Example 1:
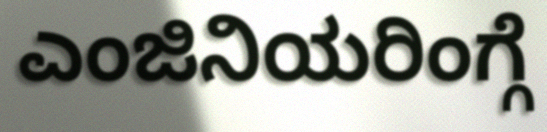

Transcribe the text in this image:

ಎಂಜಿನಿಯರಿಂಗ್ಗೆ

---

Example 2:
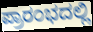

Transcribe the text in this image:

ಪ್ರಾರಂಭದಲ್ಲಿ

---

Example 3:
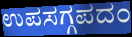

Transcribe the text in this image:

ಉಪಸಗ್ಗಪದಂ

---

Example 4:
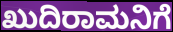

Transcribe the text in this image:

ಖುದಿರಾಮನಿಗೆ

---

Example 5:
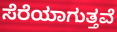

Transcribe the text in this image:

ಸೆರೆಯಾಗುತ್ತವೆ